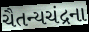
ચૈતન્યચંદ્રના